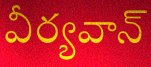
వీర్యవాన్